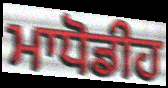
ਮਾਧੋਡੀਹ